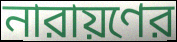
নারায়ণের